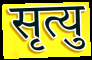
सृत्यु